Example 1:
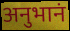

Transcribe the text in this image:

अनुभानं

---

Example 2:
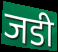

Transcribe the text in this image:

जडी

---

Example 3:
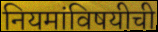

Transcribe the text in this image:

नियमांविषयीची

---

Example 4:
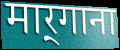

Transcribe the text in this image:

मार्गाना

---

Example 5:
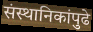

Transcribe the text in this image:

संस्थानिकांपुढे